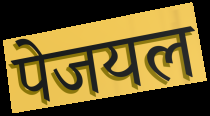
पेजयल